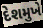
દેશમુખે